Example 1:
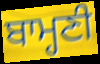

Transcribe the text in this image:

ਬਾਮ੍ਹਣੀ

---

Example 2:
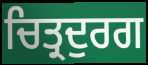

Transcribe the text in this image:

ਚਿਤ੍ਰਦੁਰਗ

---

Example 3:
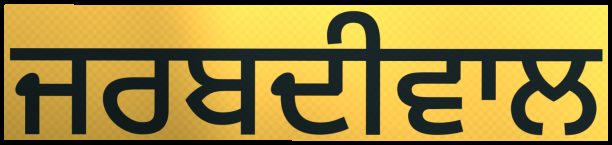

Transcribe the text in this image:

ਜਰਬਦੀਵਾਲ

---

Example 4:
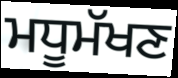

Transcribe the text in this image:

ਮਧੂਮੱਖਣ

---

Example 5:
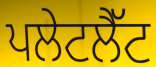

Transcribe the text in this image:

ਪਲੇਟਲੈੱਟ